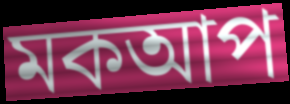
মকআপ